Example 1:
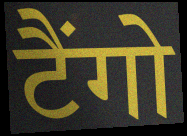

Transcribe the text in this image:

टैंगो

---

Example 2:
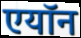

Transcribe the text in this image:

एयॉन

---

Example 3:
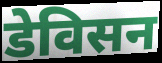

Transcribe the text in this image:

डेविसन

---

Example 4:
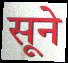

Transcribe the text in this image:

सूने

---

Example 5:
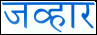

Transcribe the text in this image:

जव्हार